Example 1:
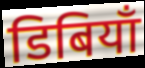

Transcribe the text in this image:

डिबियाँ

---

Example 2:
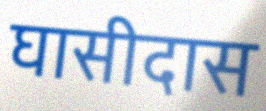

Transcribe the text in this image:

घासीदास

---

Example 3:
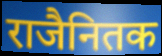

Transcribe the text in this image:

राजैनितक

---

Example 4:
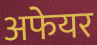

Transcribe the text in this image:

अफेयर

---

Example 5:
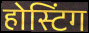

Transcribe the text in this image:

होस्टिंग